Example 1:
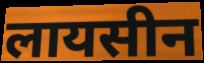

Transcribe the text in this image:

लायसीन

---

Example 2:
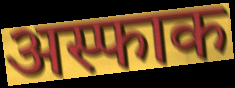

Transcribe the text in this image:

अस्फाक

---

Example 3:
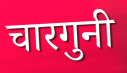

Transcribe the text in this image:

चारगुनी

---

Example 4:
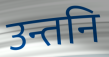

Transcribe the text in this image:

उन्तनि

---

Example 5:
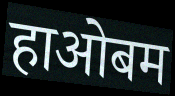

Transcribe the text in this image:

हाओबम